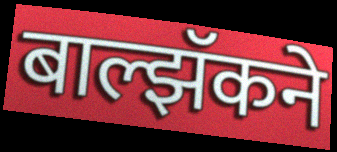
बाल्झॅकने